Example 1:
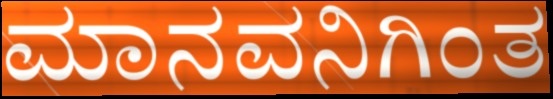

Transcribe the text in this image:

ಮಾನವನಿಗಿಂತ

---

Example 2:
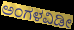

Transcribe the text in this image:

ಅಂಗಳವಿಡೀ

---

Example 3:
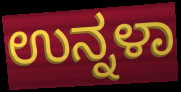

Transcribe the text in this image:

ಉನ್ನಳಾ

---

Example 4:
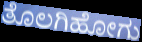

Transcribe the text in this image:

ತೊಲಗಿಹೋಗು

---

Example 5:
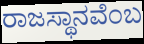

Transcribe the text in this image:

ರಾಜಸ್ಥಾನವೆಂಬ